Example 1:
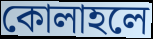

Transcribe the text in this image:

কোলাহলে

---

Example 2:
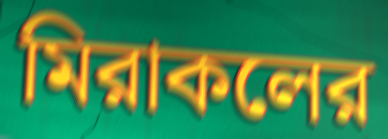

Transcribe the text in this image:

মিরাকলের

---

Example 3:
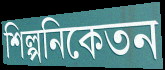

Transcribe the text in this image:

শিল্পনিকেতন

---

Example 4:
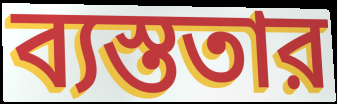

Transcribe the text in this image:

ব্যস্ততার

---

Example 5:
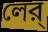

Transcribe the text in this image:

লের্